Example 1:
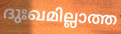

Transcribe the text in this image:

ദുഃഖമില്ലാത്ത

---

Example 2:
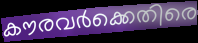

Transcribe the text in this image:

കൗരവർക്കെതിരെ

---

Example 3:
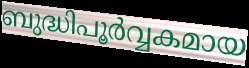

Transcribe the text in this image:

ബുദ്ധിപൂർവ്വകമായ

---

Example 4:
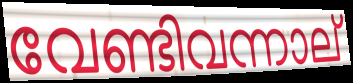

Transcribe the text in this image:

വേണ്ടിവന്നാല്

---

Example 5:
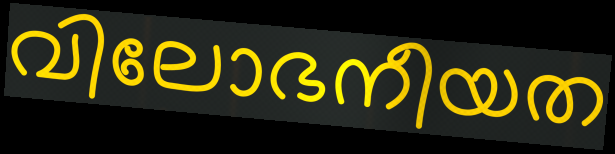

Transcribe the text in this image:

വിലോഭനീയത